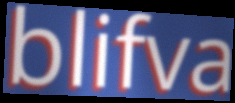
blifva